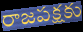
రాజపక్షకు